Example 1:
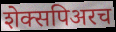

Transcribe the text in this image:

शेक्सपिअरच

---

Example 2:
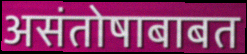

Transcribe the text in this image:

असंतोषाबाबत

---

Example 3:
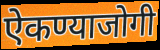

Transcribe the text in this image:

ऐकण्याजोगी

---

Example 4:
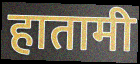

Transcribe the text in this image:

हातामी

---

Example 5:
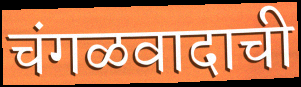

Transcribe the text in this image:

चंगळवादाची